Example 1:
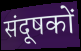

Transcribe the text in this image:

संदूषकों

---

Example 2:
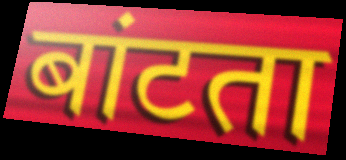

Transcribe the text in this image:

बांटता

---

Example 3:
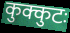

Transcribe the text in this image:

कुक्कुटः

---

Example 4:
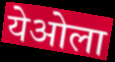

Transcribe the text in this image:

येओला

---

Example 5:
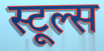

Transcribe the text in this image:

स्टूल्स